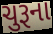
ચુરૂના